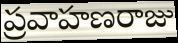
ప్రవాహణరాజు